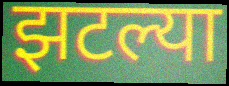
झटल्या